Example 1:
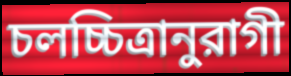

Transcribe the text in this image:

চলচ্চিত্রানুরাগী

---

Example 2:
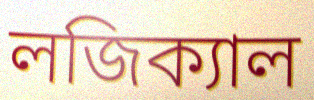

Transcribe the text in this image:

লজিক্যাল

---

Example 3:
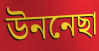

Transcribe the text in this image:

উননেছা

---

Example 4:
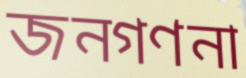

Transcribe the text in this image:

জনগণনা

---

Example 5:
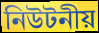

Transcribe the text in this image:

নিউটনীয়